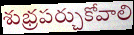
శుభ్రపర్చుకోవాలి